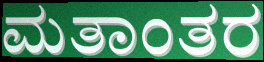
ಮತಾಂತರ